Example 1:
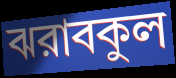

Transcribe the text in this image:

ঝরাবকুল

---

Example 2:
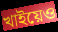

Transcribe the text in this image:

খাইয়েও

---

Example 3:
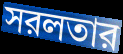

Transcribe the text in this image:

সরলতার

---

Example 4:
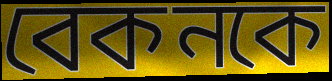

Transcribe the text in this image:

বেকনকে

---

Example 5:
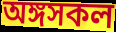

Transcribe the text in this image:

অঙ্গসকল